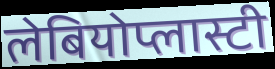
लेबियोप्लास्टी